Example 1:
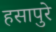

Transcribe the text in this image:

हसापुरे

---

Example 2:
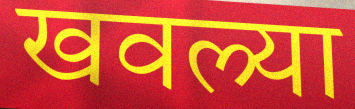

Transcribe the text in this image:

खवल्या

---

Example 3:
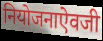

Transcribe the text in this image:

नियोजनाऐवजी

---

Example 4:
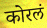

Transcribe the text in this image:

कोरलं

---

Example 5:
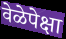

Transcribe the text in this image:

वेळेपेक्षा